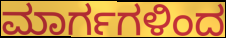
ಮಾರ್ಗಗಳಿಂದ